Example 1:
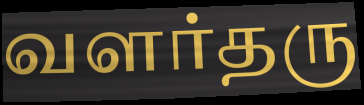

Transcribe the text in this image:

வளர்தரு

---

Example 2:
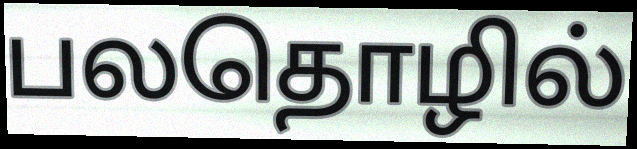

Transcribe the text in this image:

பலதொழில்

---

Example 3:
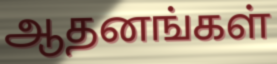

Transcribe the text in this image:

ஆதனங்கள்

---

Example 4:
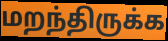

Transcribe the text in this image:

மறந்திருக்க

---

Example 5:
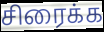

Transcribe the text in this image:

சிரைக்க